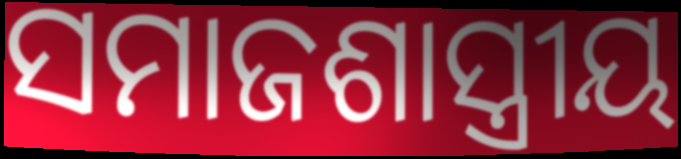
ସମାଜଶାସ୍ତ୍ରୀୟ